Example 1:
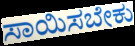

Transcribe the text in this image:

ಸಾಯಿಸಬೇಕು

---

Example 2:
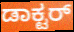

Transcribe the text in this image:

ಡಾಕ್ಟರ್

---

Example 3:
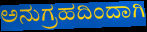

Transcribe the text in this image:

ಅನುಗ್ರಹದಿಂದಾಗಿ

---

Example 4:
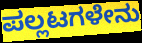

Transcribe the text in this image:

ಪಲ್ಲಟಗಳೇನು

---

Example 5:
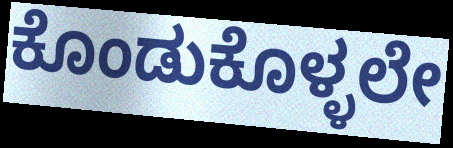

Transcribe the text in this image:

ಕೊಂಡುಕೊಳ್ಳಲೇ